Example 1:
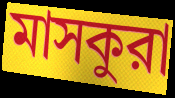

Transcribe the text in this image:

মাসকুরা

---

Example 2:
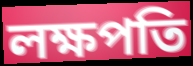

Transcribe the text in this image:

লক্ষপতি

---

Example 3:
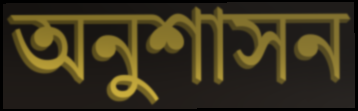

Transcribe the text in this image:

অনুশাসন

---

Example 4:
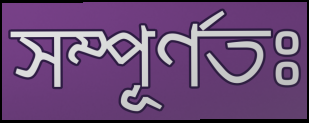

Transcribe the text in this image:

সম্পূর্ণতঃ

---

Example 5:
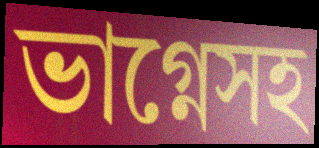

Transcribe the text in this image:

ভাগ্নেসহ